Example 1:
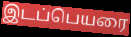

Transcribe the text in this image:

இடப்பெயரை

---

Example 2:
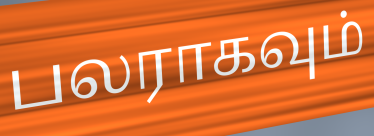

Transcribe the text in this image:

பலராகவும்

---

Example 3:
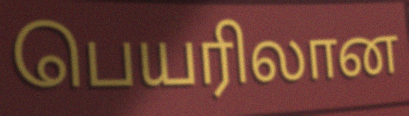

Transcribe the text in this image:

பெயரிலான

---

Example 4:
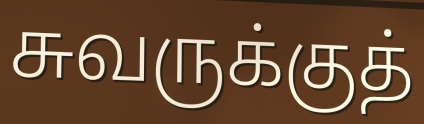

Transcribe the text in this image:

சுவருக்குத்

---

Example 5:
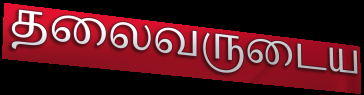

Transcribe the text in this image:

தலைவருடைய